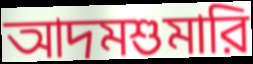
আদমশুমারি